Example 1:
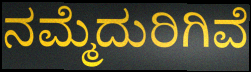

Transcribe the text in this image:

ನಮ್ಮೆದುರಿಗಿವೆ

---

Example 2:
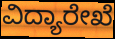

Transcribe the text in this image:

ವಿದ್ಯಾರೇಖೆ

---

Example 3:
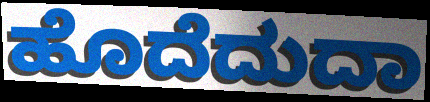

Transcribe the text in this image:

ಹೊದೆದುದಾ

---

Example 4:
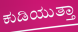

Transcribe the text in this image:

ಕುಡಿಯುತ್ತಾ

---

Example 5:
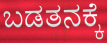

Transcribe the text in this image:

ಬಡತನಕ್ಕೆ